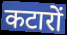
कटारों